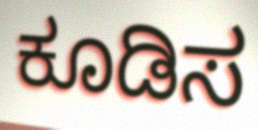
ಕೂಡಿಸ